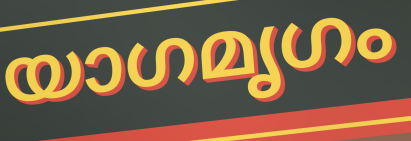
യാഗമൃഗം